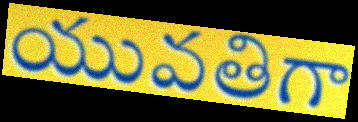
యువతిగా